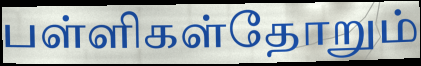
பள்ளிகள்தோறும்